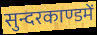
सुन्दरकाण्डमें